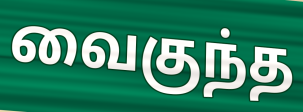
வைகுந்த